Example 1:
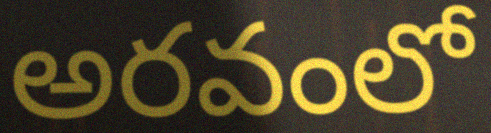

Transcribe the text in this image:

అరవంలో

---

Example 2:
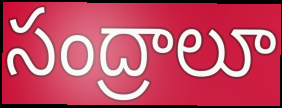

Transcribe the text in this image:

సంద్రాలూ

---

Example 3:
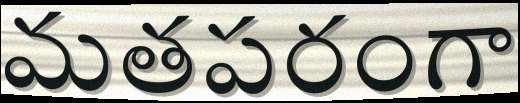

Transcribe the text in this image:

మతపరంగా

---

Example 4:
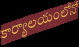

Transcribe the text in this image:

కార్యాలయంలోనో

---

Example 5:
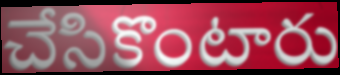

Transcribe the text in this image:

చేసికొంటారు